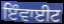
ਇੰਵਾਈਟ